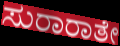
ಸುರಾರಾತೇ